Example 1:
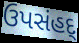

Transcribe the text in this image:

ઉપસંહદ્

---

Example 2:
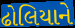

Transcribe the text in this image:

ઢોલિયાને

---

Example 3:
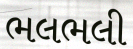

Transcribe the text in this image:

ભલભલી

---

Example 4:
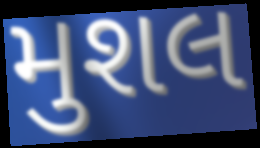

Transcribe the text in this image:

મુશલ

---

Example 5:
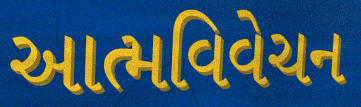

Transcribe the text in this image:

આત્મવિવેચન